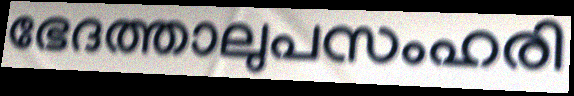
ഭേദത്താലുപസംഹരി